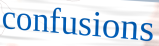
confusions